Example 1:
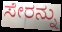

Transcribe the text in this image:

ಸೇರನ್ನು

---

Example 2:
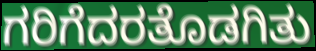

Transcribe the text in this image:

ಗರಿಗೆದರತೊಡಗಿತು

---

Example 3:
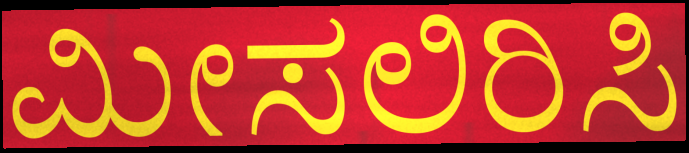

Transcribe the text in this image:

ಮೀಸಲಿರಿಸಿ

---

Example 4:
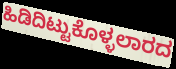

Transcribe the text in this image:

ಹಿಡಿದಿಟ್ಟುಕೊಳ್ಳಲಾರದ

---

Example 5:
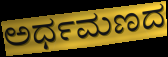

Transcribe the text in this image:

ಅರ್ಧಮಣದ